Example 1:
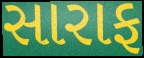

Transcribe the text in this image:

સારાફ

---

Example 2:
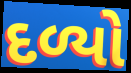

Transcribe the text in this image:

દળ્યો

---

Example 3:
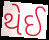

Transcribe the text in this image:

થેઈ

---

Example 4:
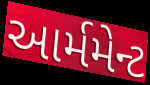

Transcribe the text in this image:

આર્મમેન્ટ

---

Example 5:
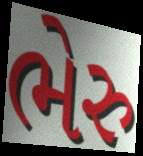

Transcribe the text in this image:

ભેરુ